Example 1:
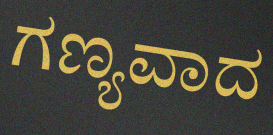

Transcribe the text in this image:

ಗಣ್ಯವಾದ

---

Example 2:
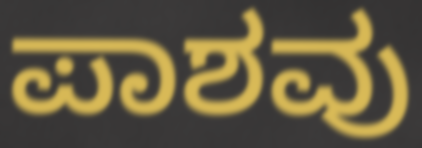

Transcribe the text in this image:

ಪಾಶವು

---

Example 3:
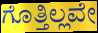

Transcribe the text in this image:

ಗೊತ್ತಿಲ್ಲವೇ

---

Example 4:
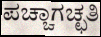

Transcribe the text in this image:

ಪಚ್ಚಾಗಚ್ಛತಿ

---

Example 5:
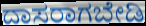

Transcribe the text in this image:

ದಾಸರಾಗಬೇಡಿ